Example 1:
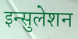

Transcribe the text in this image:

इन्सुलेशन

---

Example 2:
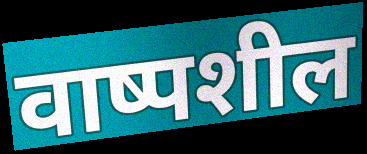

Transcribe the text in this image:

वाष्पशील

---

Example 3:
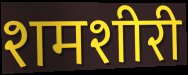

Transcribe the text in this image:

शमशीरी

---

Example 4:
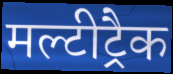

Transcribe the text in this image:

मल्टीट्रैक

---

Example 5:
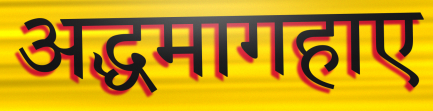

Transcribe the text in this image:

अद्धमागहाए